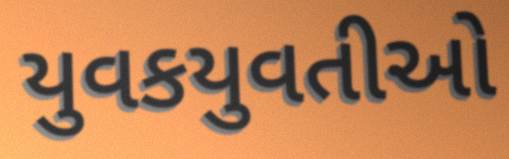
યુવકયુવતીઓ